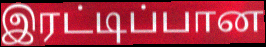
இரட்டிப்பான